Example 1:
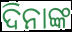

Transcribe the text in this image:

ଦିନାଙ୍କ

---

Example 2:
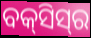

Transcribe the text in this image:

ବକ୍‌ସିସ୍‌ର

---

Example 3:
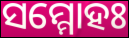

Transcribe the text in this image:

ସମ୍ମୋହଃ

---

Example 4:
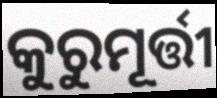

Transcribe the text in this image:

କୁରୁମୂର୍ତ୍ତୀ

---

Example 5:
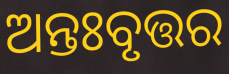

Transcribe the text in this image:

ଅନ୍ତଃବୃତ୍ତର